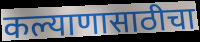
कल्याणासाठीचा